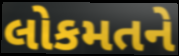
લોકમતને